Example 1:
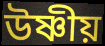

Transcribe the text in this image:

উষ্ণীয়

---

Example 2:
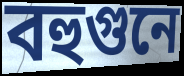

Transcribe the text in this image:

বহুগুনে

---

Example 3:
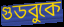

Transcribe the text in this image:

গুডবুকে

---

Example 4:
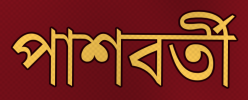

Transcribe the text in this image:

পাশবর্তী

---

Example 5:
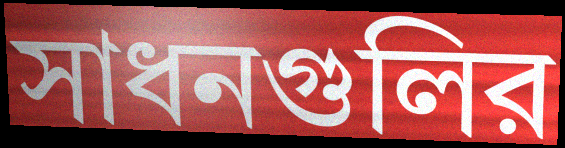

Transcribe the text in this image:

সাধনগুলির